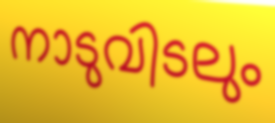
നാടുവിടലും